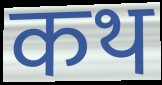
कथ